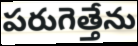
పరుగెత్తేను